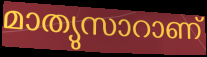
മാത്യുസാറാണ്